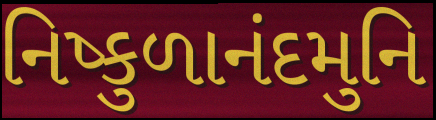
નિષ્કુળાનંદમુનિ